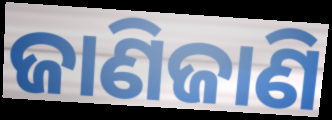
ଜାଣିଜାଣି